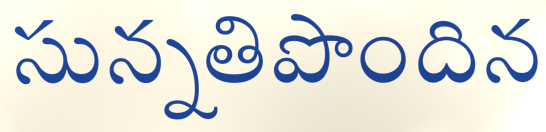
సున్నతిపొందిన